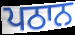
ਪਠਾਨ